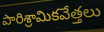
పారిశ్రామికవేత్తలు